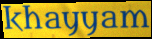
khayyam